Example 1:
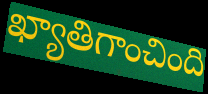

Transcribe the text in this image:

ఖ్యాతిగాంచింది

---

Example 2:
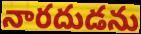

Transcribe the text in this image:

నారదుడను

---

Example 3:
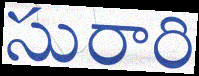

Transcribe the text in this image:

సురారి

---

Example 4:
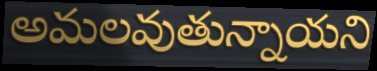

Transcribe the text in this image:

అమలవుతున్నాయని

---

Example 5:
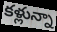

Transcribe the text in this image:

కళ్లున్నా